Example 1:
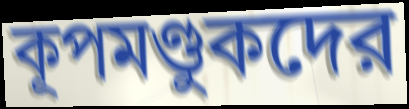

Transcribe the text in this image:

কূপমণ্ডুকদের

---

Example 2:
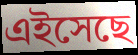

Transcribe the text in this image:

এইসেছে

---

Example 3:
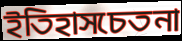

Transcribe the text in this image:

ইতিহাসচেতনা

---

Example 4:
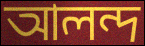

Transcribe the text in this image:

আলন্দ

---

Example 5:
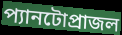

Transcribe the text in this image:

প্যানটোপ্রাজল